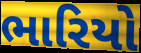
ભારિયો